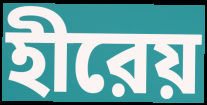
হীরেয়